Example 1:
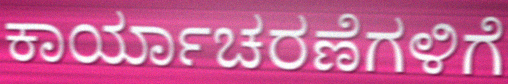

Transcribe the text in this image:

ಕಾರ್ಯಾಚರಣೆಗಳಿಗೆ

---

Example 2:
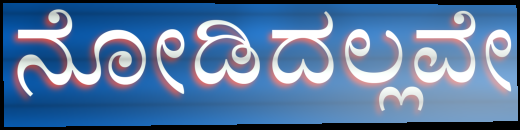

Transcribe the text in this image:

ನೋಡಿದಲ್ಲವೇ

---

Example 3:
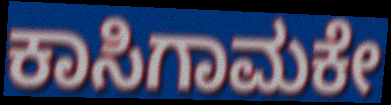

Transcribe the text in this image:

ಕಾಸಿಗಾಮಕೇ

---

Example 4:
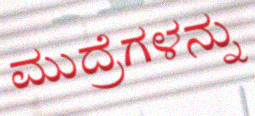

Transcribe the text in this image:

ಮುದ್ರೆಗಳನ್ನು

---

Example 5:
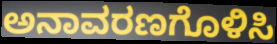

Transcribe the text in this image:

ಅನಾವರಣಗೊಳಿಸಿ